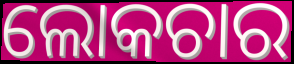
ଲୋକଚାର